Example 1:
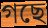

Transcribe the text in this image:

গছে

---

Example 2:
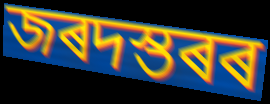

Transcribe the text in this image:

জৰদস্তৰৰ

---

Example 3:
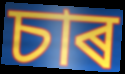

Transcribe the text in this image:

চাৰ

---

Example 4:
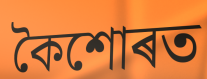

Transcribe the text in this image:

কৈশোৰত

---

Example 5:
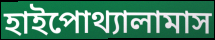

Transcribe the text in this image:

হাইপোথ্যালামাস